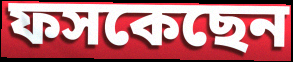
ফসকেছেন